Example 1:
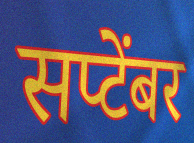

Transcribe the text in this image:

सप्टेंबर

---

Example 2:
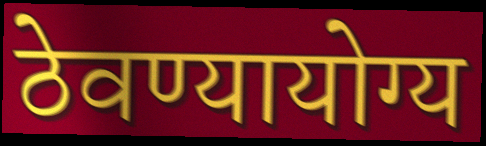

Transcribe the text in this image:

ठेवण्यायोग्य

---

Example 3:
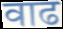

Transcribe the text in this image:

वाढ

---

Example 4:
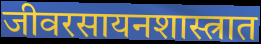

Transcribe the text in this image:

जीवरसायनशास्त्रात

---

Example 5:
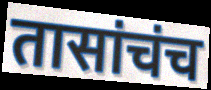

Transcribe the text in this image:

तासांचंच